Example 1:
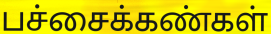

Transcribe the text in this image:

பச்சைக்கண்கள்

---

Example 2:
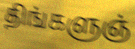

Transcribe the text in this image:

திங்களுஞ்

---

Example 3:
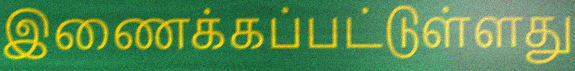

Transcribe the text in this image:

இணைக்கப்பட்டுள்ளது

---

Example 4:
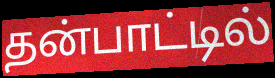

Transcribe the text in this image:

தன்பாட்டில்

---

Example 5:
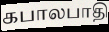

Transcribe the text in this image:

கபாலபாதி